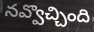
నవ్వొచ్చింది